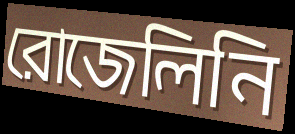
রোজেলিনি